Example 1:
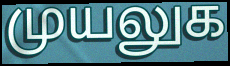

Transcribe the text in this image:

முயலுக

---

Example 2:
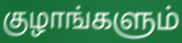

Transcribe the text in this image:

குழாங்களும்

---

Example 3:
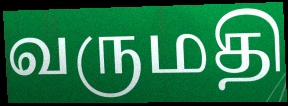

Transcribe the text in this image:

வருமதி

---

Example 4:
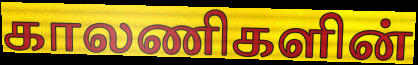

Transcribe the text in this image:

காலணிகளின்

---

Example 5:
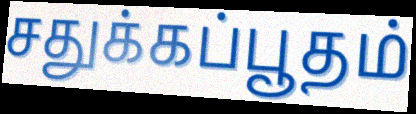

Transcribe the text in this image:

சதுக்கப்பூதம்